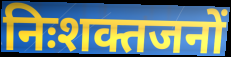
निःशक्तजनों